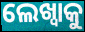
ଲେଖ୍ବାକୁ